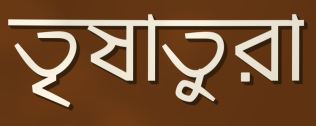
তৃষাতুরা